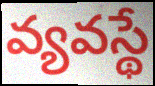
వ్యవస్థే